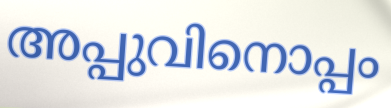
അപ്പുവിനൊപ്പം